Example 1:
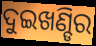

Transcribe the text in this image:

ଦୁଇଖଣ୍ଡିର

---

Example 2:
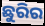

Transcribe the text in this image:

ଛୁରିର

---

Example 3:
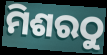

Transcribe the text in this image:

ମିଶରଠୁ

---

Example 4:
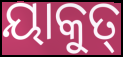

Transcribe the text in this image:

ୟାକୁତ୍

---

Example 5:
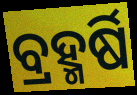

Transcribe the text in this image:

ବ୍ରହ୍ମର୍ଷି